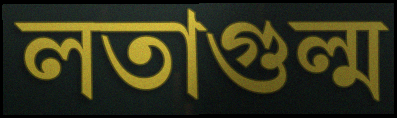
লতাগুল্ম